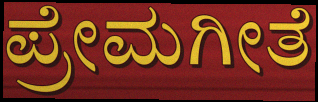
ಪ್ರೇಮಗೀತೆ